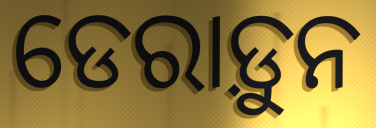
ଡେରାଡ଼ୁନ